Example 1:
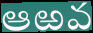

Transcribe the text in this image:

ఆఱవ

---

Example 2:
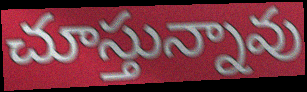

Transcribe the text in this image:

చూస్తున్నావు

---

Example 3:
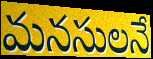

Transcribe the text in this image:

మనసులనే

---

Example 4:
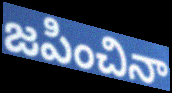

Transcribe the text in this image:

జపించినా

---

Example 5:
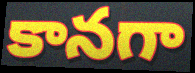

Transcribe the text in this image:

కానగా